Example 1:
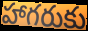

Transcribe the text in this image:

హాగరుకు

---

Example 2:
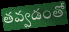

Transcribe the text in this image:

తవ్వడంతో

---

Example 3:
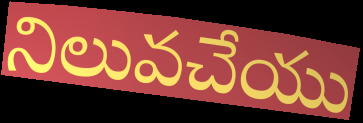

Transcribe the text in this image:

నిలువచేయు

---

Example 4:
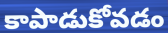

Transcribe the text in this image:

కాపాడుకోవడం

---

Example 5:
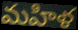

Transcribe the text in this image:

మహిళ